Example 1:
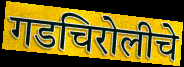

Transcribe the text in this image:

गडचिरोलीचे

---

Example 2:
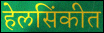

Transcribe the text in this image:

हेलसिंकीत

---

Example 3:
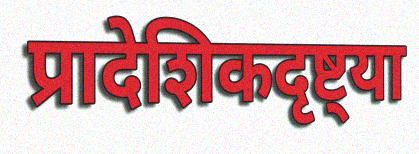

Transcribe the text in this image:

प्रादेशिकदृष्ट्या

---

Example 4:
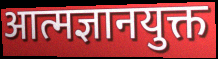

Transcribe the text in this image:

आत्मज्ञानयुक्त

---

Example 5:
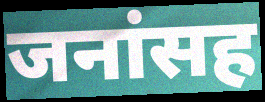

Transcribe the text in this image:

जनांसह